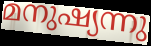
മനുഷ്യന്നു